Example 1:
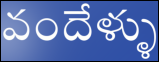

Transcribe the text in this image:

వందేళ్ళు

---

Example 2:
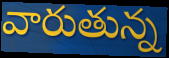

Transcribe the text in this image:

వారుతున్న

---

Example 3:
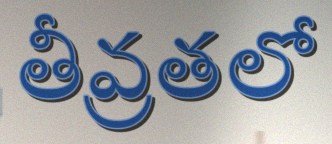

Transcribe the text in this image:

తీవ్రతలో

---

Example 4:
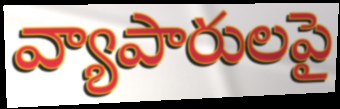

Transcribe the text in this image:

వ్యాపారులపై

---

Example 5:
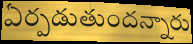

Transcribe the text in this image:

ఏర్పడుతుందన్నారు